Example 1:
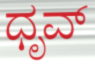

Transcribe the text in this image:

ಧೃವ್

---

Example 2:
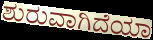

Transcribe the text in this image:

ಶುರುವಾಗಿದೆಯಾ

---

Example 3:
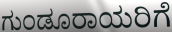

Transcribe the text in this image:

ಗುಂಡೂರಾಯರಿಗೆ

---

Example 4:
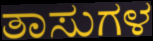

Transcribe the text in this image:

ತಾಸುಗಳ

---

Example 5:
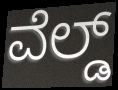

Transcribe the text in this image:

ವೆಲ್ಡ್